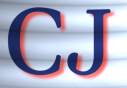
CJ